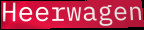
Heerwagen